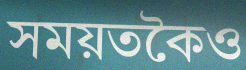
সময়তকৈও